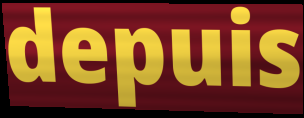
depuis